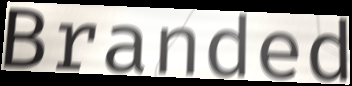
Branded